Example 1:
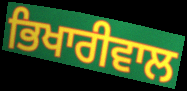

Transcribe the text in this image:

ਭਿਖਾਰੀਵਾਲ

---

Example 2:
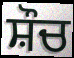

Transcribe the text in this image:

ਸ਼ੌਚ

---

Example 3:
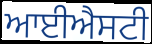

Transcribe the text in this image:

ਆਈਐਸਟੀ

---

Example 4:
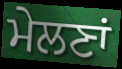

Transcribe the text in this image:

ਮੇਲਣਾਂ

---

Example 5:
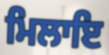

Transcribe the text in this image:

ਮਿਲਾਇ